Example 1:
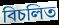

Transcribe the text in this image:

বিচলিত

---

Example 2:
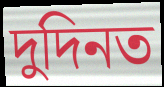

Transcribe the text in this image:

দুদিনত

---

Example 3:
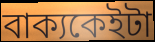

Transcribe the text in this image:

বাক্যকেইটা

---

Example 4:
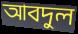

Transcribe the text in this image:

আবদুল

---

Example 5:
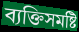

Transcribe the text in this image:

ব্যক্তিসমষ্টি